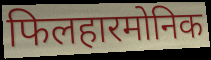
फिलहारमोनिक